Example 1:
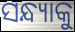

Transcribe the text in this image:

ସନ୍ଧ୍ୟାକୁ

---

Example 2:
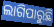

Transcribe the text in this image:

ଲାଗିପାରୁଛି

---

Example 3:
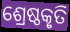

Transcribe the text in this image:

ଶ୍ରେଷ୍ଠକୃତି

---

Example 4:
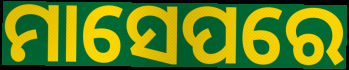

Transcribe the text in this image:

ମାସେପରେ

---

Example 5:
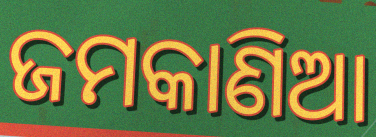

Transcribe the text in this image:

ଜମକାଣିଆ